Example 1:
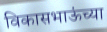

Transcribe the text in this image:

विकासभाऊंच्या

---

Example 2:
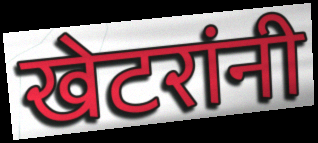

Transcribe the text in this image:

खेटरांनी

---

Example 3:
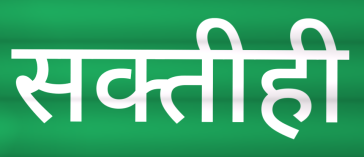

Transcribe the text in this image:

सक्तीही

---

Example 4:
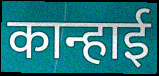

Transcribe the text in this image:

कान्हाई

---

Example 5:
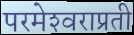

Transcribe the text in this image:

परमेश्वराप्रती